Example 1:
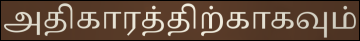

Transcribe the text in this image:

அதிகாரத்திற்காகவும்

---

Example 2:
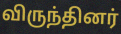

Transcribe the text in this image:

விருந்தினர்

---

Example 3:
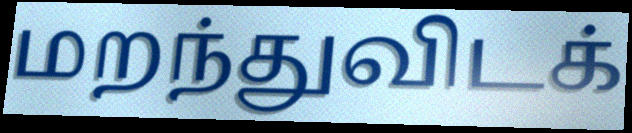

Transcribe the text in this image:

மறந்துவிடக்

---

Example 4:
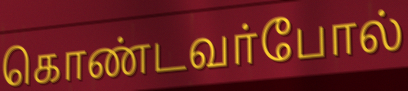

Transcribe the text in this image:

கொண்டவர்போல்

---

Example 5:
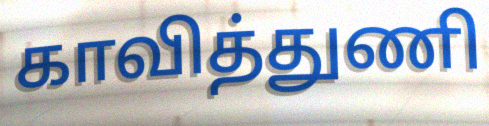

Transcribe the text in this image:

காவித்துணி